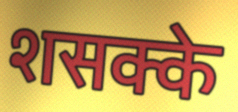
शसक्के